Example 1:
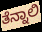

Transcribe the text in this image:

ತೆನ್ನಾಲಿ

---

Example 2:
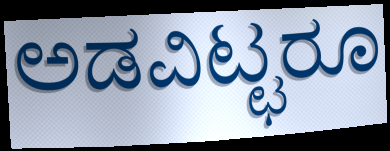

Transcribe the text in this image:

ಅಡವಿಟ್ಟರೂ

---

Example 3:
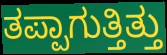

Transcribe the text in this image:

ತಪ್ಪಾಗುತ್ತಿತ್ತು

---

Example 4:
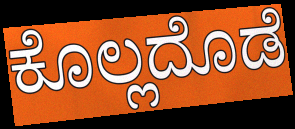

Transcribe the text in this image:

ಕೊಲ್ಲದೊಡೆ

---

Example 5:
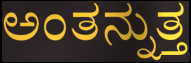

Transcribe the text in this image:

ಅಂತನ್ನುತ್ತ